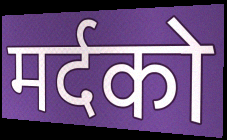
मर्दको